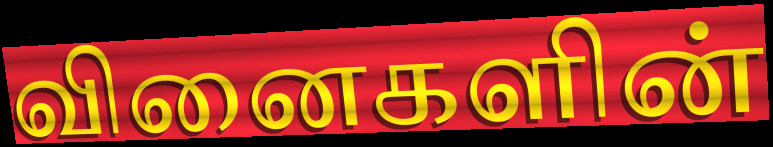
வினைகளின்